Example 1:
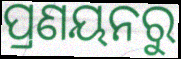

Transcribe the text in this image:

ପ୍ରଣୟନରୁ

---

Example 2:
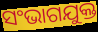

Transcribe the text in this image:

ସଂଭାଗଯୁକ୍ତ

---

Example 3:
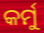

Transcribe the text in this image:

କର୍ମୁ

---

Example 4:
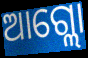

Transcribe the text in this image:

ଆଗ୍ଲୋ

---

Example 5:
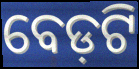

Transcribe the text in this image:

ବେଡ଼ଟି